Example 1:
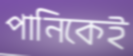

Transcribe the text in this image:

পানিকেই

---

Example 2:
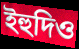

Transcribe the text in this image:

ইহুদিও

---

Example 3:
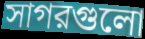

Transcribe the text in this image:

সাগরগুলো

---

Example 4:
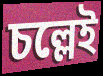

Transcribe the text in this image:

চল্লেই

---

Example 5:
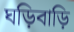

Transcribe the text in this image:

ঘড়িবাড়ি